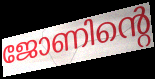
ജോണിന്റെ